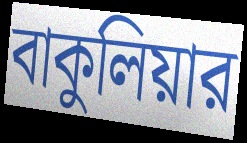
বাকুলিয়ার